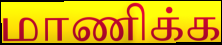
மாணிக்க